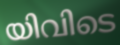
യിവിടെ